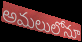
అమలులోనూ